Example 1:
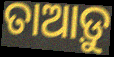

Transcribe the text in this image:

ତାଆଡ଼ୁ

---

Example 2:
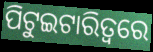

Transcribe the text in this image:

ପିଟୁଇଟାରିତ୍ୱରେ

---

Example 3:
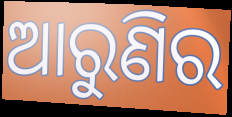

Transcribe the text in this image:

ଆରୁଣିର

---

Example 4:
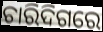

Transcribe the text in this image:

ଚାରିଦିଗରେ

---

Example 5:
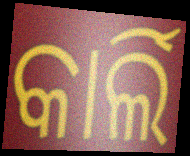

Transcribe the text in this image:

କାର୍ଲି